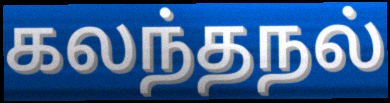
கலந்தநல்